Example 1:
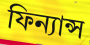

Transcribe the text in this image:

ফিন্যান্স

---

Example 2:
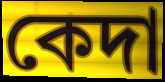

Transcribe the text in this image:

কেদা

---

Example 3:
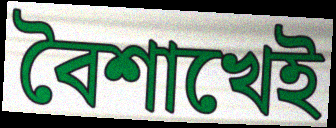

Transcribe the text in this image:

বৈশাখেই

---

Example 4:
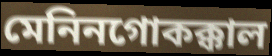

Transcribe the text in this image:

মেনিনগোকক্কাল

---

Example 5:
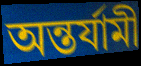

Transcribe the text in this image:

অন্তর্যামী